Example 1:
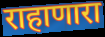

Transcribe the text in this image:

राहाणारा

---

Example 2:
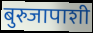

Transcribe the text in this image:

बुरुजापाशी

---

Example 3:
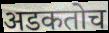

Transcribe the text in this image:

अडकतोच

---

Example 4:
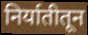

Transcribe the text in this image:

निर्यातीतून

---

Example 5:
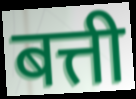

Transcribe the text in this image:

बत्ती